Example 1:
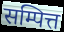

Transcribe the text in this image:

सम्पित्त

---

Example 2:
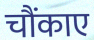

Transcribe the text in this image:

चौंकाए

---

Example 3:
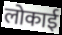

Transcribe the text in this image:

लोकाई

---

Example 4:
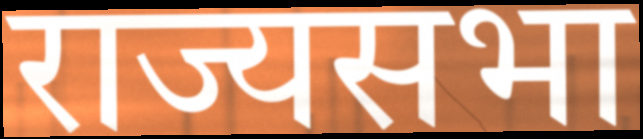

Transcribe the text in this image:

राज्‍यसभा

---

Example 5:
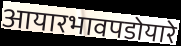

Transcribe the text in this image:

आयारभावपडोयारे